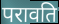
परावति